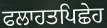
ਫਲਾਹਤਪਿਛੇਹ